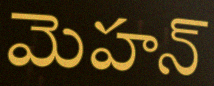
మెహన్